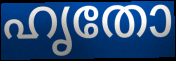
ഹൃതോ